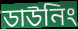
ডাউনিং